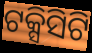
ଟକ୍ସିସିଟି